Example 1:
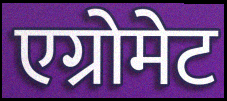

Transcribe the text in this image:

एग्रोमेट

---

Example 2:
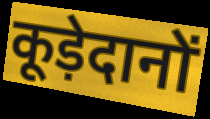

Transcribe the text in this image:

कूड़ेदानों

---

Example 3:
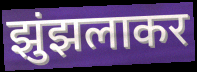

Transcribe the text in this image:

झुंझलाकर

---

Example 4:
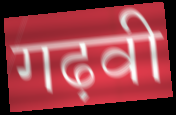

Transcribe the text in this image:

गढ़वी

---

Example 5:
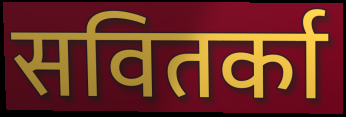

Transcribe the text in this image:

सवितर्का